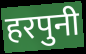
हरपुनी